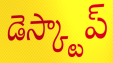
డెస్క్టాప్